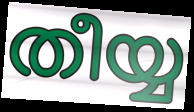
തീയ്യ